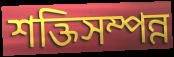
শক্তিসম্পন্ন